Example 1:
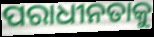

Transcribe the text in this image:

ପରାଧୀନତାକୁ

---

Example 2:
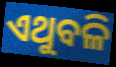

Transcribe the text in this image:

ଏଥୁବଳି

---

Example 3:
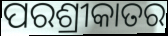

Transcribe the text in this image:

ପରଶ୍ରୀକାତର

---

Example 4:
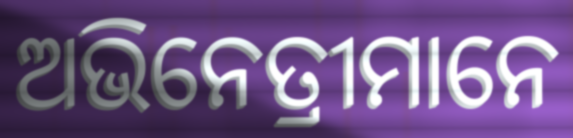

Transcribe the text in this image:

ଅଭିନେତ୍ରୀମାନେ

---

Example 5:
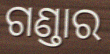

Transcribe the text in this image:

ଗଣ୍ଡାର